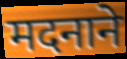
मदनाने